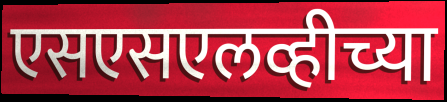
एसएसएलव्हीच्या